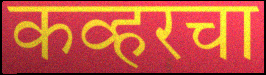
कव्हरचा